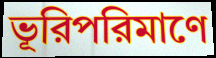
ভূরিপরিমাণে